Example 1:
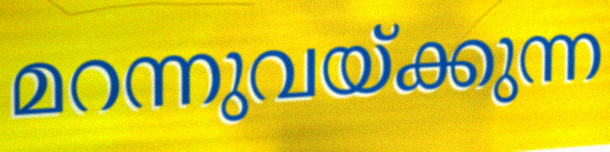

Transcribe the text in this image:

മറന്നുവയ്ക്കുന്ന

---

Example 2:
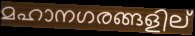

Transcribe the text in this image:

മഹാനഗരങ്ങളില്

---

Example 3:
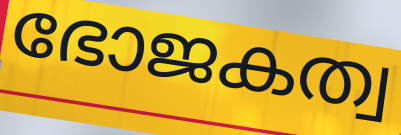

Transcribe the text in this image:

ഭോജകത്വ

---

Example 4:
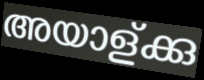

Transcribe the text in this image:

അയാള്ക്കു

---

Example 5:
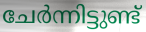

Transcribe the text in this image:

ചേർന്നിട്ടുണ്ട്